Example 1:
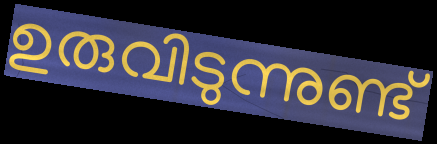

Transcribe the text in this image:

ഉരുവിടുന്നുണ്ട്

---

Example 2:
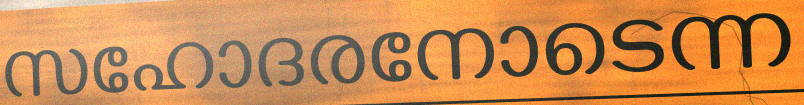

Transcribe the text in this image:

സഹോദരനോടെന്ന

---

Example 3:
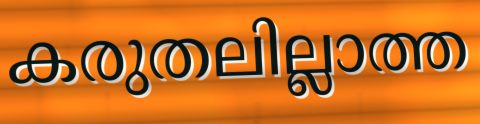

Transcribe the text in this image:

കരുതലില്ലാത്ത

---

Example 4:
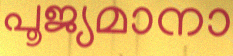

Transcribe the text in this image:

പൂജ്യമാനാ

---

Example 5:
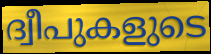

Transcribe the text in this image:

ദ്വീപുകളുടെ